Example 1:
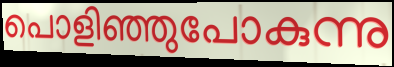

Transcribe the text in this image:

പൊളിഞ്ഞുപോകുന്നു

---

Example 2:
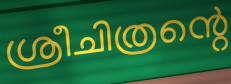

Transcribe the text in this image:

ശ്രീചിത്രന്റെ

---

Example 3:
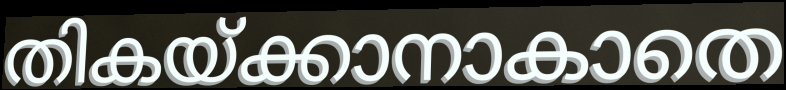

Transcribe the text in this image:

തികയ്ക്കാനാകാതെ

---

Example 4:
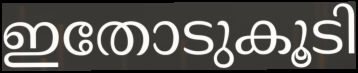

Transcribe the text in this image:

ഇതോടുകൂടി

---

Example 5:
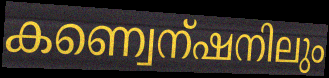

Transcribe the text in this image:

കണ്വെന്ഷനിലും